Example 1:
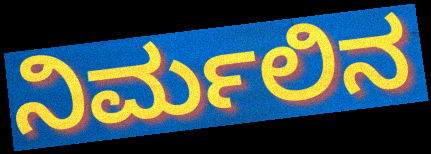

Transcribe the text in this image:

ನಿರ್ಮಲಿನ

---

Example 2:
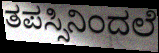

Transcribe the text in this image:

ತಪಸ್ಸಿನಿಂದಲೆ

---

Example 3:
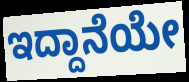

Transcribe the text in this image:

ಇದ್ದಾನೆಯೇ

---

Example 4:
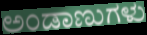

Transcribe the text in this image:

ಅಂಡಾಣುಗಳು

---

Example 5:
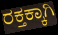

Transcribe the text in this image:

ರಕ್ತಕ್ಕಾಗಿ